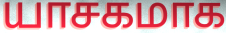
யாசகமாக